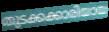
തുടക്കക്കാരിയായ